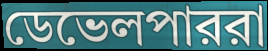
ডেভেলপাররা